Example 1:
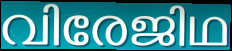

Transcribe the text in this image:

വിരേജിഥ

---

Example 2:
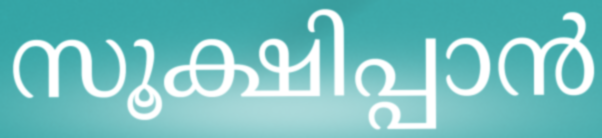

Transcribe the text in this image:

സൂക്ഷിപ്പാൻ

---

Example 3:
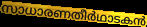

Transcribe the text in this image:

സാധാരണതീർഥാടകൻ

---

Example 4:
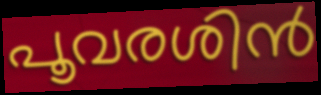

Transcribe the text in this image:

പൂവരശിൻ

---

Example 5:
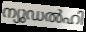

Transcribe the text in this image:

ന്യുഡൽഹി